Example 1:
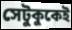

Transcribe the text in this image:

সেটুকুকেই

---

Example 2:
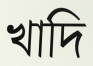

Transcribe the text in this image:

খাদি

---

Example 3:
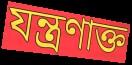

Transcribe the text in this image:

যন্ত্রণাক্ত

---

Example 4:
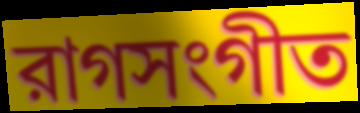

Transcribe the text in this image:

রাগসংগীত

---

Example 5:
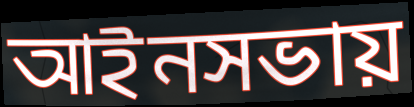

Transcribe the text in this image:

আইনসভায়